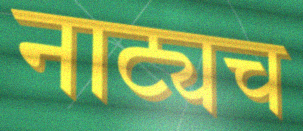
नाट्यच